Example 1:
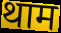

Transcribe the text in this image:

थाम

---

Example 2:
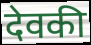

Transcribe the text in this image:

देवकी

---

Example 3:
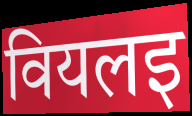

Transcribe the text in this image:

वियलइ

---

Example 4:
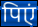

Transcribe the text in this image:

पिएं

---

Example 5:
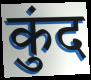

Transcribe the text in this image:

कुंद